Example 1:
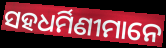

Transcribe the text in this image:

ସହଧର୍ମିଣୀମାନେ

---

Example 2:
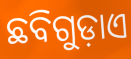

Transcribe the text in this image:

ଛବିଗୁଡ଼ାଏ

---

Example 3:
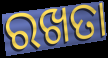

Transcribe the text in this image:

ରଖତା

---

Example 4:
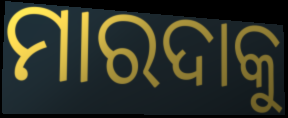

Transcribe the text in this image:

ମାରଦାକୁ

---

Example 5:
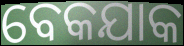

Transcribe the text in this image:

ବେକଯାକ